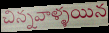
చిన్నవాళ్ళయిన